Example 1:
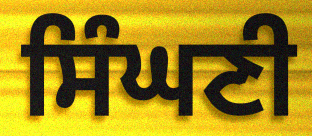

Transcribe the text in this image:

ਸਿੰਘਣੀ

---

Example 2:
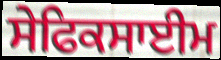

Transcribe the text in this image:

ਸੇਫਿਕਸਾਈਮ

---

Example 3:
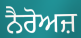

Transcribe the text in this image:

ਨੈਰੋਅਜ਼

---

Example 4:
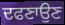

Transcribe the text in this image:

ਦਫਣਾਉਣ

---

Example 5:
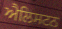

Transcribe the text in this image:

ਐਲਿਸਟਨ